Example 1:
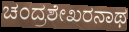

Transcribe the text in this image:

ಚಂದ್ರಶೇಖರನಾಥ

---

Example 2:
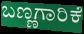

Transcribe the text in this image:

ಬಣ್ಣಗಾರಿಕೆ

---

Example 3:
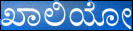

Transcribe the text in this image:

ಖಾಲಿಯೋ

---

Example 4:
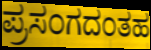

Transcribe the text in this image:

ಪ್ರಸಂಗದಂತಹ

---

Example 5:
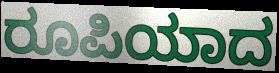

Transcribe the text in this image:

ರೂಪಿಯಾದ